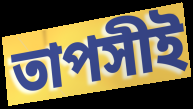
তাপসীই